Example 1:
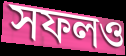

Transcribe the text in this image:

সফলও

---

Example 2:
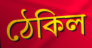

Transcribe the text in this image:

ঠেকিল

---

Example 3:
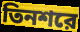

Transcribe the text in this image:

তিনশরে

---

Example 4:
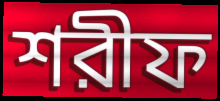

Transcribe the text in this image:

শরীফ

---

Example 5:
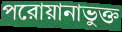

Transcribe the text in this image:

পরোয়ানাভুক্ত